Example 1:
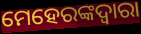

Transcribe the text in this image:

ମେହେରଙ୍କଦ୍ଵାରା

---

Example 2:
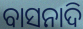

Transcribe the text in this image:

ବାସନାଦି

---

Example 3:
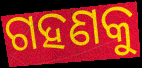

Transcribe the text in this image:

ଗହଣକୁ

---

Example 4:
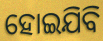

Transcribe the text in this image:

ହୋଇଯିବି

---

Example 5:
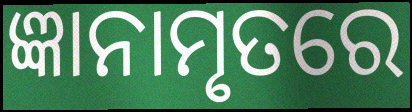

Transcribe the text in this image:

ଜ୍ଞାନାମୃତରେ